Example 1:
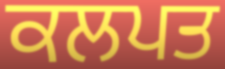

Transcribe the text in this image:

ਕਲਪਤ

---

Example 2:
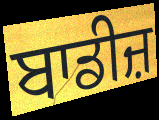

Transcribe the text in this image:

ਬਾਡੀਜ਼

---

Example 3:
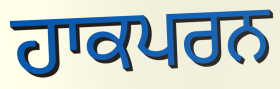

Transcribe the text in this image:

ਹਾਕਪਰਨ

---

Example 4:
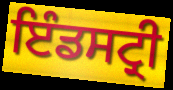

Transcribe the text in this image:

ਇੰਡਸਟ੍ਰੀ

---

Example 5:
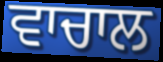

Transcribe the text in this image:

ਵਾਚਾਲ